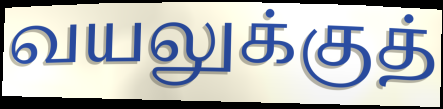
வயலுக்குத்